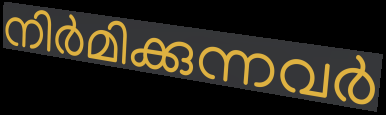
നിർമിക്കുന്നവർ